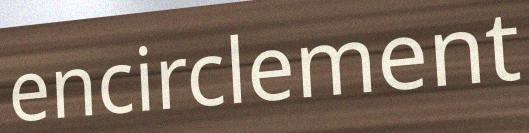
encirclement